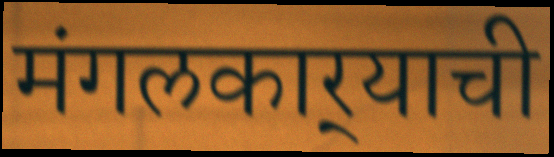
मंगलकार्याची